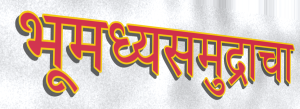
भूमध्यसमुद्राचा